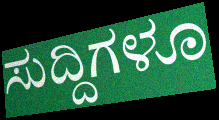
ಸುದ್ದಿಗಳೂ